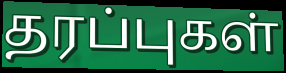
தரப்புகள்